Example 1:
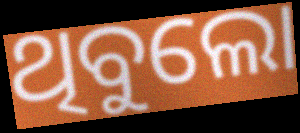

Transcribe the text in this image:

ଥିବୁଲୋ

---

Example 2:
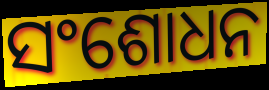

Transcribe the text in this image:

ସଂଶୋଧନ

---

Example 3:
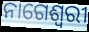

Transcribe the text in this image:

ନାଗେଶ୍ୱରୀ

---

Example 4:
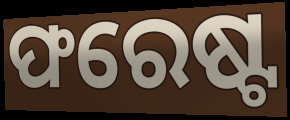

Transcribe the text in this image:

ଫରେଷ୍ଟ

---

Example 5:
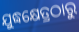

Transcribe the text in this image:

ଯୁଦ୍ଧକ୍ଷେତ୍ରଠାରୁ